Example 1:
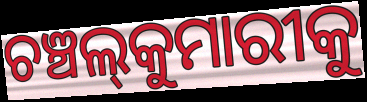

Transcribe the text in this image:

ଚଞ୍ଚଲ୍‍କୁମାରୀକୁ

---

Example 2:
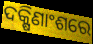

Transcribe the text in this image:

ଦକ୍ଷିଣାଂଶରେ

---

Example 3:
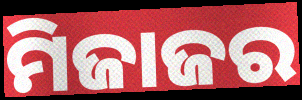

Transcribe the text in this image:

ମିଜାଜର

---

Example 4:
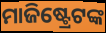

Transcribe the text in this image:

ମାଜିଷ୍ଟ୍ରେଟଙ୍କ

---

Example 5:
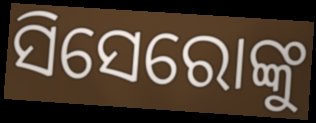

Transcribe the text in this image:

ସିସେରୋଙ୍କୁ